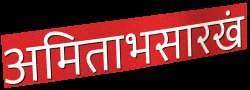
अमिताभसारखं